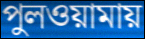
পুলওয়ামায়